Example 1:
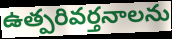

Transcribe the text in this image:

ఉత్పరివర్తనాలను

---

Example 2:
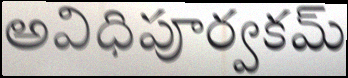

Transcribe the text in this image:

అవిధిపూర్వకమ్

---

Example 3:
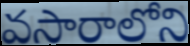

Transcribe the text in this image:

వసారాలోని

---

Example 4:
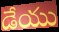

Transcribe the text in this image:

డేయు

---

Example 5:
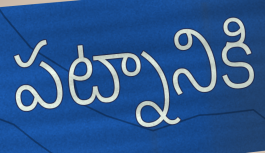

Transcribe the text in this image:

పట్నానికి